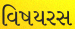
વિષયરસ